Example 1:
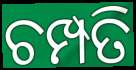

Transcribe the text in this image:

ଚମ୍ପତି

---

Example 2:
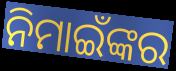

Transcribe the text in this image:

ନିମାଇଁଙ୍କର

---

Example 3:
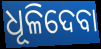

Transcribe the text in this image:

ଧୂଳିଦେବା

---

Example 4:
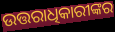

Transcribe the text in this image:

ଉତ୍ତରାଧିକାରୀଙ୍କର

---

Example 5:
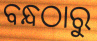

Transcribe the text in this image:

ବନ୍ଧଠାରୁ